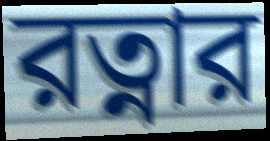
রত্নার